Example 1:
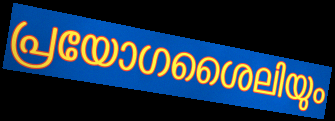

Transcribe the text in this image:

പ്രയോഗശൈലിയും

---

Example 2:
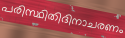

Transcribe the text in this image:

പരിസ്ഥിതിദിനാചരണം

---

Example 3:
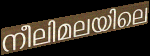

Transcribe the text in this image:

നീലിമലയിലെ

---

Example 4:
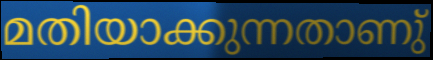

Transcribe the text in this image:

മതിയാക്കുന്നതാണു്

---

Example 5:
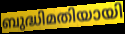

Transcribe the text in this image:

ബുദ്ധിമതിയായി